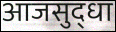
आजसुद्धा